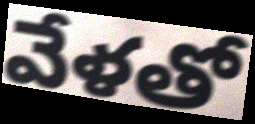
వేళతో